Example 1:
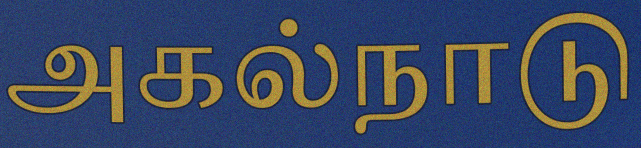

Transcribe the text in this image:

அகல்நாடு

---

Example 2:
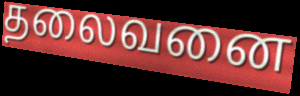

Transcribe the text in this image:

தலைவனை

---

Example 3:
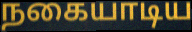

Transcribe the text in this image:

நகையாடிய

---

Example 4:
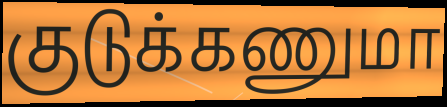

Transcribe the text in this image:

குடுக்கணுமா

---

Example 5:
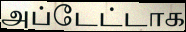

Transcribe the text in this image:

அப்டேட்டாக